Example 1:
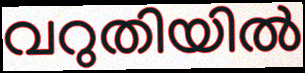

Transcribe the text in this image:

വറുതിയിൽ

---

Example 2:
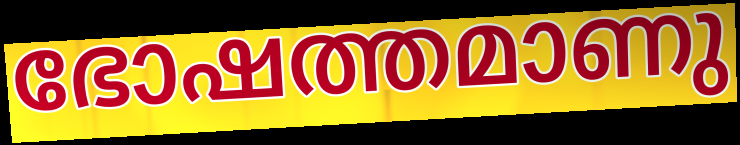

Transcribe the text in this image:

ഭോഷത്തമാണു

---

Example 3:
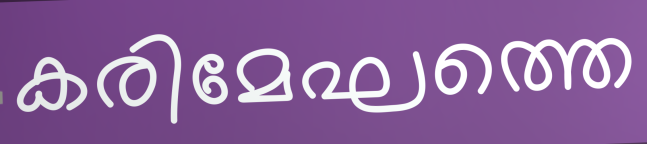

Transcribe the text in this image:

കരിമേഘത്തെ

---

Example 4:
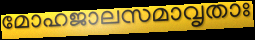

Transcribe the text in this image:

മോഹജാലസമാവൃതാഃ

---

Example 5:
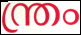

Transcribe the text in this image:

ന്ത്രം